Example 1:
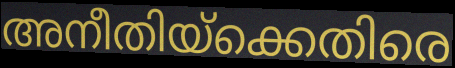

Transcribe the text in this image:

അനീതിയ്ക്കെതിരെ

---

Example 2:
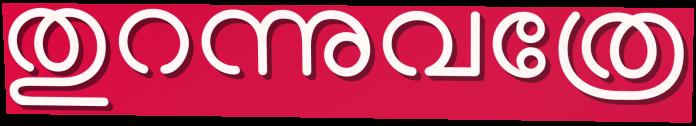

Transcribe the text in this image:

തുറന്നുവത്രേ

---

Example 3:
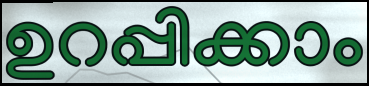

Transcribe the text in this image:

ഉറപ്പിക്കാം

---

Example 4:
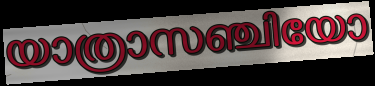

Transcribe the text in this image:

യാത്രാസഞ്ചിയോ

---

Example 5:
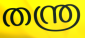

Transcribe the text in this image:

തന്ത്ര